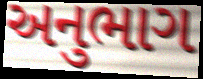
અનુભાગ